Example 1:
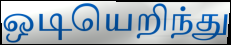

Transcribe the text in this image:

ஒடியெறிந்து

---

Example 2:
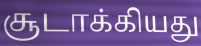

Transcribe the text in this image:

சூடாக்கியது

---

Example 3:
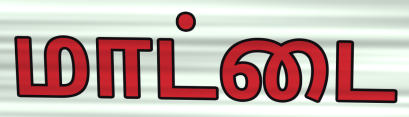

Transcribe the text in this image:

மாட்டை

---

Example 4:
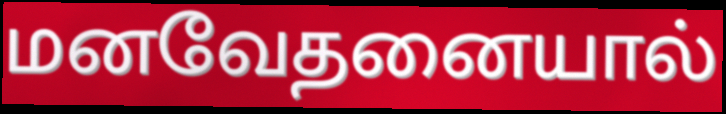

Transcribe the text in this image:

மனவேதனையால்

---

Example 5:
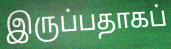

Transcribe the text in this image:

இருப்பதாகப்